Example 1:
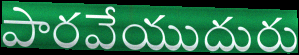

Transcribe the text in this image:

పారవేయుదురు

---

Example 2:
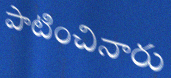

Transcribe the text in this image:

పాటించినారు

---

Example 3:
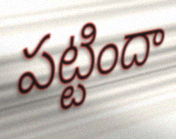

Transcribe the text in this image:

పట్టిందా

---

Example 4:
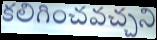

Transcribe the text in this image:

కలిగించవచ్చని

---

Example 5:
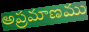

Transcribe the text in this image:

అప్రమాణము